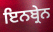
ਇਨਬ੍ਰੇਨ